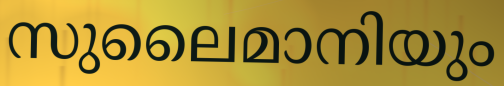
സുലൈമാനിയും